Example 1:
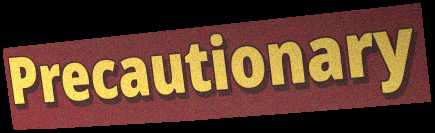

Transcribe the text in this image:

Precautionary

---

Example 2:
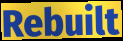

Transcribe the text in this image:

Rebuilt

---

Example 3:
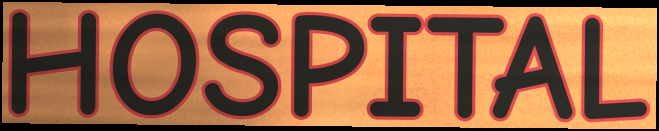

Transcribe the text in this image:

HOSPITAL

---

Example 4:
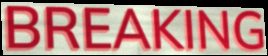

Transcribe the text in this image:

BREAKING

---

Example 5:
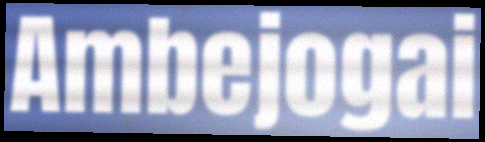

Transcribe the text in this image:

Ambejogai